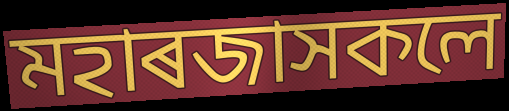
মহাৰজাসকলে